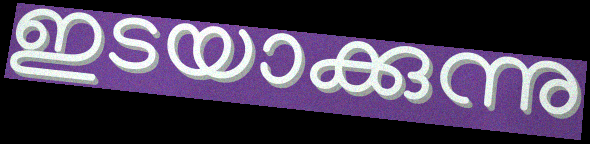
ഇടയാക്കുന്നു